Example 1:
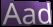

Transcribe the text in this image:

Aad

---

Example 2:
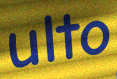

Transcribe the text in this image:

ulto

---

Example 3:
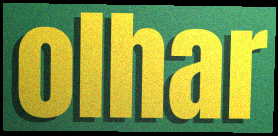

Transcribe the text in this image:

olhar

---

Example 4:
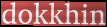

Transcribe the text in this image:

dokkhin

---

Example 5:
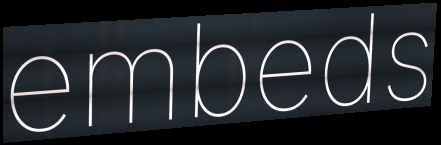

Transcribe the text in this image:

embeds